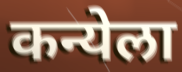
कन्येला